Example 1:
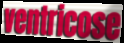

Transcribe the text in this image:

ventricose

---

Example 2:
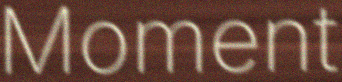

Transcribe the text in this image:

Moment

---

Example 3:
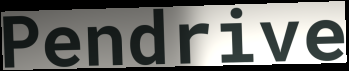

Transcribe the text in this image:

Pendrive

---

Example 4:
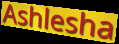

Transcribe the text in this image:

Ashlesha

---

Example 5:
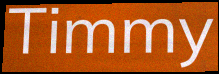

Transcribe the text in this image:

Timmy